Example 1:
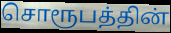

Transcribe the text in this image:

சொரூபத்தின்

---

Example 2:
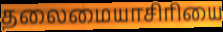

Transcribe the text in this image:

தலைமையாசிரியை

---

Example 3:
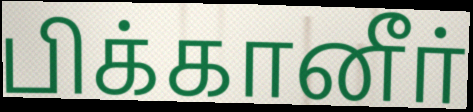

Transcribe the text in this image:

பிக்கானீர்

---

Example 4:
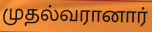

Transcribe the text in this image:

முதல்வரானார்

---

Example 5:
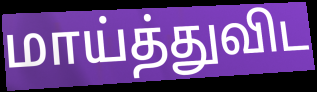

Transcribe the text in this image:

மாய்த்துவிட